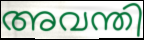
അവന്തി